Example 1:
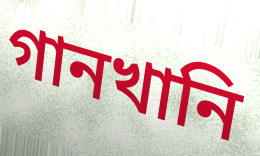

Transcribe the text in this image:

গানখানি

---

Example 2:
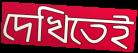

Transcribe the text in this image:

দেখিতেই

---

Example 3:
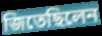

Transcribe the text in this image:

জিতেছিলেন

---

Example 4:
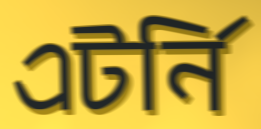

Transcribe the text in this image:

এটর্নি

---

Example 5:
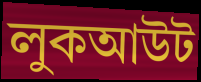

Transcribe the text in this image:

লুকআউট